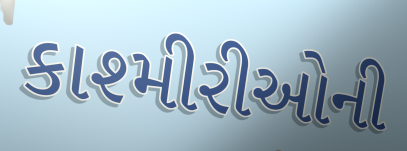
કાશ્મીરીઓની